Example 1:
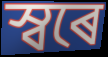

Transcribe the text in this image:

স্বৰে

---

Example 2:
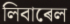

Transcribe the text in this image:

লিবাৰেল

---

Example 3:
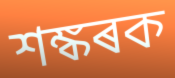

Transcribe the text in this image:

শঙ্কৰক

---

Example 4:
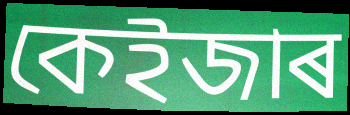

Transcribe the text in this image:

কেইজাৰ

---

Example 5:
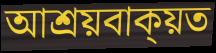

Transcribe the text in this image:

আশ্ৰয়বাক্য়ত